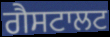
ਗੈਸਟਾਲਟ